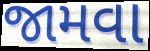
જામવા